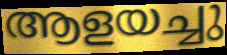
ആളയച്ചു